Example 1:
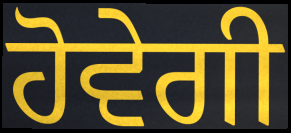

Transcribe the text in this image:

ਹੋਵੇਗੀ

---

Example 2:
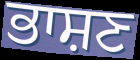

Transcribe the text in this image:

ਭਾਸ਼ਣ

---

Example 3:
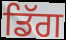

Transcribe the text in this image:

ਡਿੱਗ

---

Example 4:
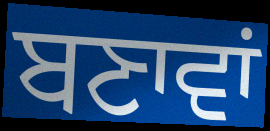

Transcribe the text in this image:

ਬਣਾਵਾਂ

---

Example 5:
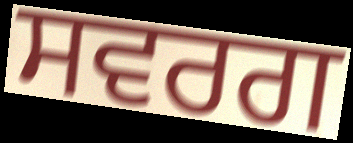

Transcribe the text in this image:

ਸਵਰਗ